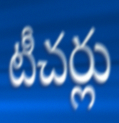
టీచర్లు